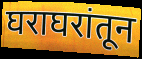
घराघरांतून